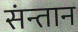
संन्तान